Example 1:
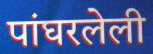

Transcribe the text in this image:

पांघरलेली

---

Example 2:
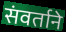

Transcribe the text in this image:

संवर्ताने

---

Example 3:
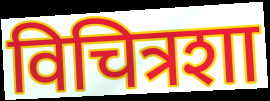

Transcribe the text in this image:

विचित्रशा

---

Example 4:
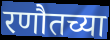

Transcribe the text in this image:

रणौतच्या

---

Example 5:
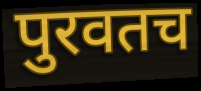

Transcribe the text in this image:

पुरवतच